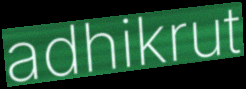
adhikrut